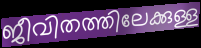
ജീവിതത്തിലേക്കുള്ള